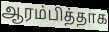
ஆரம்பித்தாக